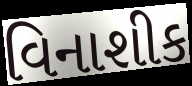
વિનાશીક